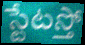
స్టేటస్తో